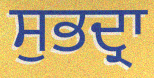
ਸੁਭਦ੍ਰਾ